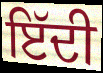
ਇੱਦੀ